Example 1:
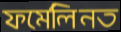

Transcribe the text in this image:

ফৰ্মেলিনত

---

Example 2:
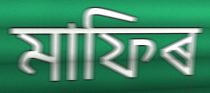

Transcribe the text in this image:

মাফিৰ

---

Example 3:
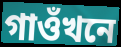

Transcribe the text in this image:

গাওঁখনে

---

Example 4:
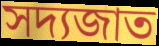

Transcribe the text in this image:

সদ্যজাত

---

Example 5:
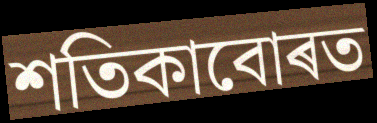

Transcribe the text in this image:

শতিকাবোৰত